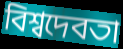
বিশ্বদেবতা